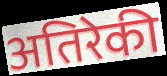
अतिरेकी